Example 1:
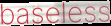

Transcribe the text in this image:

baseless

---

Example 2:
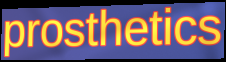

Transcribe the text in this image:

prosthetics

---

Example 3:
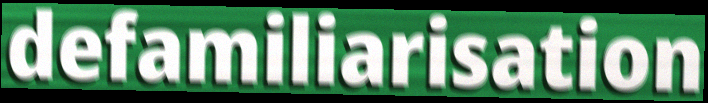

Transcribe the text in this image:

defamiliarisation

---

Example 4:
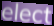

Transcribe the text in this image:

elect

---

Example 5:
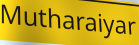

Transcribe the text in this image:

Mutharaiyar